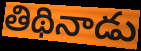
తిథినాడు